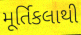
મૂર્તિકલાથી